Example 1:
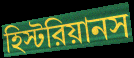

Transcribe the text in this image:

হিস্টরিয়ানস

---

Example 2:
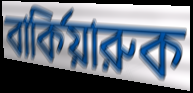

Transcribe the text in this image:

বার্কিয়ারুক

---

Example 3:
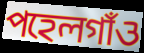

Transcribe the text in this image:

পহেলগাঁও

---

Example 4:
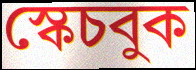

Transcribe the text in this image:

স্কেচবুক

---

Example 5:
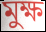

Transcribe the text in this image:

মুক্ষ